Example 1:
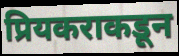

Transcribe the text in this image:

प्रियकराकडून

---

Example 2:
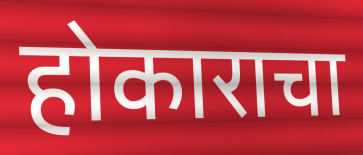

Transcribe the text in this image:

होकाराचा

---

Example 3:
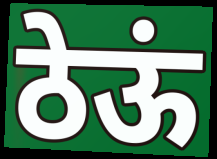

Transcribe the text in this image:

ठेऊं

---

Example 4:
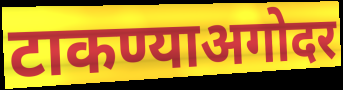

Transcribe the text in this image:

टाकण्याअगोदर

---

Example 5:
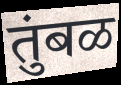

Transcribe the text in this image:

तुंबळ